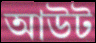
আউট